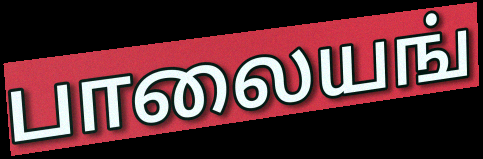
பாலையங்